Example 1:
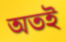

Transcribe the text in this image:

অতই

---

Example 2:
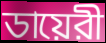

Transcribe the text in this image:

ডায়েরী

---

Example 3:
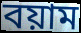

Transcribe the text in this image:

বয়াম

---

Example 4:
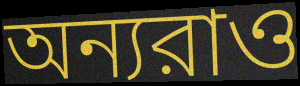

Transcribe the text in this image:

অন্যরাও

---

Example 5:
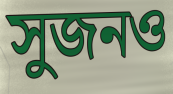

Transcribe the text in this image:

সুজনও